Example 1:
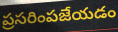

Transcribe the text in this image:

ప్రసరింపజేయడం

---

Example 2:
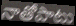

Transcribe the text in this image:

నాతోపాటు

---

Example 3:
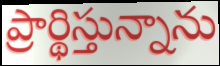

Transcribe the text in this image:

ప్రార్థిస్తున్నాను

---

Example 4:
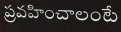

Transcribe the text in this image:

ప్రవహించాలంటే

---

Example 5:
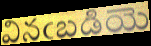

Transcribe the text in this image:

వినఁబడియె